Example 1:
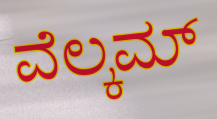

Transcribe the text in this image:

ವೆಲ್ಕಮ್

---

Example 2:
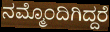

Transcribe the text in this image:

ನಮ್ಮೊಂದಿಗಿದ್ದರೆ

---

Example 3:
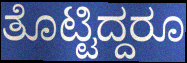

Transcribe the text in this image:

ತೊಟ್ಟಿದ್ದರೂ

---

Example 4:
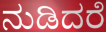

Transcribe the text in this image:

ನುಡಿದರೆ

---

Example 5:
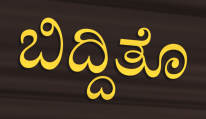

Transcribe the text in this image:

ಬಿದ್ದಿತೊ